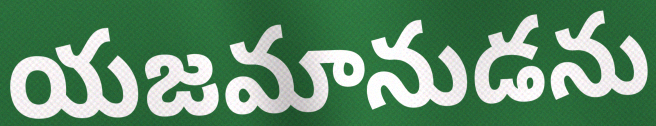
యజమానుడను